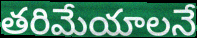
తరిమేయాలనే